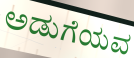
ಅಡುಗೆಯವ